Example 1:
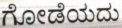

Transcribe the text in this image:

ಗೋಡೆಯದು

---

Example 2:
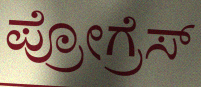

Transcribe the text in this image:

ಪ್ರೋಗ್ರೆಸ್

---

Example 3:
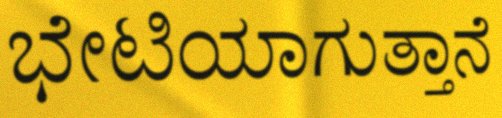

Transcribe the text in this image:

ಭೇಟಿಯಾಗುತ್ತಾನೆ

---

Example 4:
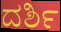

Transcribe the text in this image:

ದರ್ಶಿ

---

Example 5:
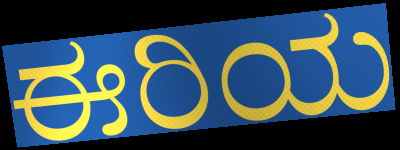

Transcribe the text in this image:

ಈರಿಯ